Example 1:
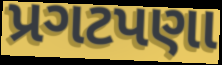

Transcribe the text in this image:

પ્રગટપણા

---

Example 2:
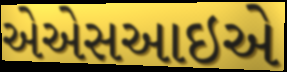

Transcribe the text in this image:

એએસઆઇએ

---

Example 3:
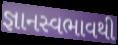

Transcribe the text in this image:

જ્ઞાનસ્વભાવથી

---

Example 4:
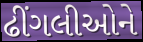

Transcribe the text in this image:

ઢીંગલીઓને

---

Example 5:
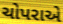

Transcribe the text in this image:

ચોપરાએ